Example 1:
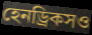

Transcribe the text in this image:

হেনড্রিকসও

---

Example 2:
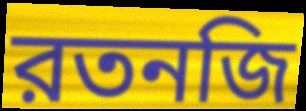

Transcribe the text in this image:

রতনজি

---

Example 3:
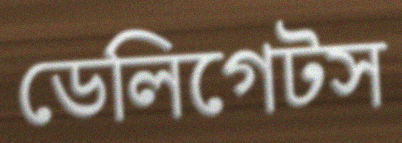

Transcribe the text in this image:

ডেলিগেটস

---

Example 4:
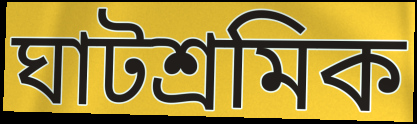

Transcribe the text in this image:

ঘাটশ্রমিক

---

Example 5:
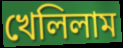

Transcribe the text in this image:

খেলিলাম